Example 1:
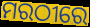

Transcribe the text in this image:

ମରଠୀରେ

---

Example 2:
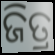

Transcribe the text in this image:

ଜିତ୍ର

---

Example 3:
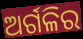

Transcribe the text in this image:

ଅର୍ଗଳିର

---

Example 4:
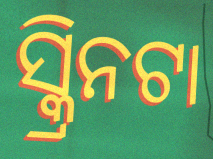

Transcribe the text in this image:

ସ୍କ୍ରିନଟା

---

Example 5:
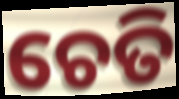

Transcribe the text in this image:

ଚେତି